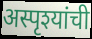
अस्पृश्यांची